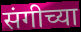
संगीच्या